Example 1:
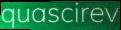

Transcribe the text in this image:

quascirev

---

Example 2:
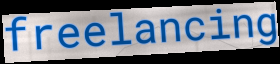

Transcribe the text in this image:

freelancing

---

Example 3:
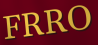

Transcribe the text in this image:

FRRO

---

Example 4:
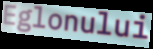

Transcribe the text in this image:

Eglonului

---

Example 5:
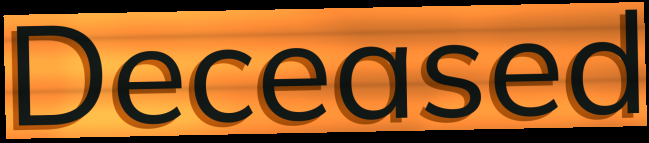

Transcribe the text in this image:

Deceased